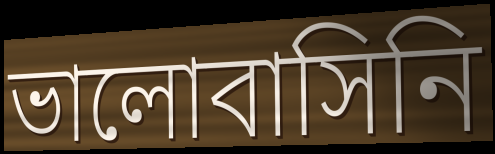
ভালোবাসিনি